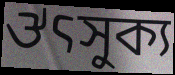
ঔৎসুক্য